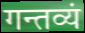
गन्तव्यं